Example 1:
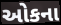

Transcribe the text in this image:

ઓકના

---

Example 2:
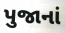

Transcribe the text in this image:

પુજાનાં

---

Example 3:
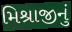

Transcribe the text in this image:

મિશ્રાજીનું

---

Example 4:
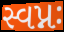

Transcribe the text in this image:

સ્વપ્નઃ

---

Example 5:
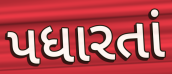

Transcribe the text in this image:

પધારતાં